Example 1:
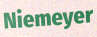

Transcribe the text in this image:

Niemeyer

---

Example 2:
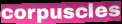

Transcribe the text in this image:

corpuscles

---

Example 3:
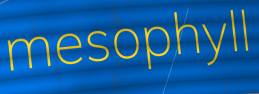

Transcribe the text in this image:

mesophyll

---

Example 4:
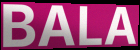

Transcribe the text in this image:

BALA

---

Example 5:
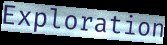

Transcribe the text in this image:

Exploration